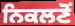
ਨਿਕਲਣੋਂ